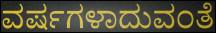
ವರ್ಷಗಳಾದುವಂತೆ